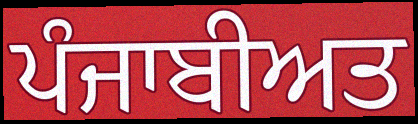
ਪੰਜਾਬੀਅਤ